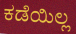
ಕಡೆಯಿಲ್ಲ